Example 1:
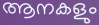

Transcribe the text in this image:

ആനകളും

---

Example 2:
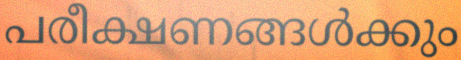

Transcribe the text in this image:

പരീക്ഷണങ്ങൾക്കും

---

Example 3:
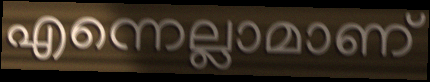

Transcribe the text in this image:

എന്നെല്ലാമാണ്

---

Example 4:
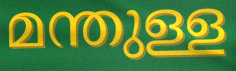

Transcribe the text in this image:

മന്തുള്ള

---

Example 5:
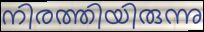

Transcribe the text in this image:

നിരത്തിയിരുന്നു